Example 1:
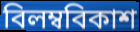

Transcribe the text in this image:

বিলম্ববিকাশ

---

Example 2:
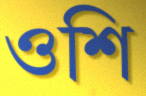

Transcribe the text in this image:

ওশি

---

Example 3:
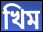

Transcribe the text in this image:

খিম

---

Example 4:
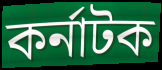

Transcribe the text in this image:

কর্নাটক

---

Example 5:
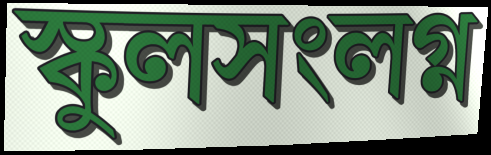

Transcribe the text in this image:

স্কুলসংলগ্ন